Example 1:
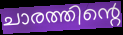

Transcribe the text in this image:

ചാരത്തിന്റെ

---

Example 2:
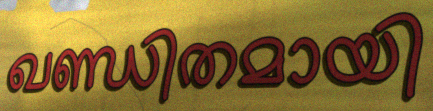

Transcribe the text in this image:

ഖണ്ഡിതമായി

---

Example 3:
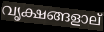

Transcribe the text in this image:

വൃക്ഷങ്ങളാല്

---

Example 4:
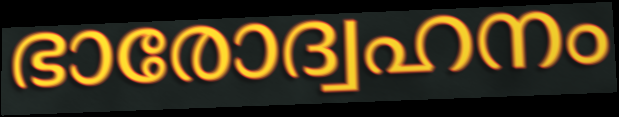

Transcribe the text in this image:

ഭാരോദ്വഹനം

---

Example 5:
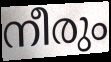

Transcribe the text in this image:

നീരും